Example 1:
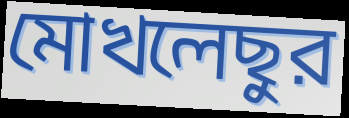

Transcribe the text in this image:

মোখলেছুর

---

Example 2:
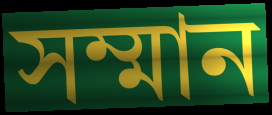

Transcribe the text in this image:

সম্মান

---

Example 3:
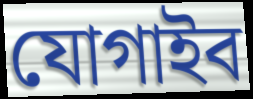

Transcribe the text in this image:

যোগাইব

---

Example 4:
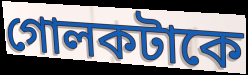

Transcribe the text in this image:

গোলকটাকে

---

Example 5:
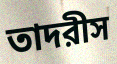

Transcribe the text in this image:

তাদরীস